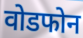
वोडफोन